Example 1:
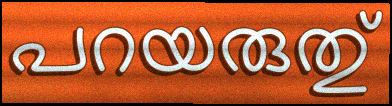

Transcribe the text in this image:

പറയരുതു്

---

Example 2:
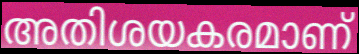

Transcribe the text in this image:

അതിശയകരമാണ്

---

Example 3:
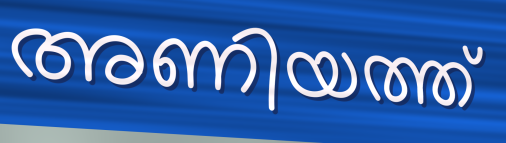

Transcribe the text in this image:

അണിയത്ത്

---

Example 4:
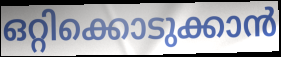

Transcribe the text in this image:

ഒറ്റിക്കൊടുക്കാൻ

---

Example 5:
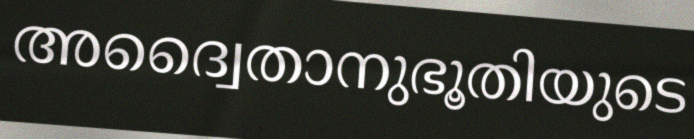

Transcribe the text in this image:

അദ്വൈതാനുഭൂതിയുടെ